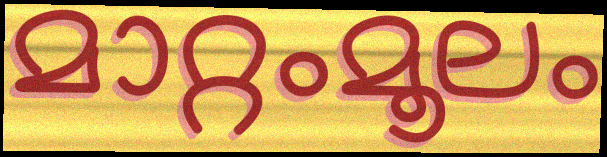
മാറ്റംമൂലം